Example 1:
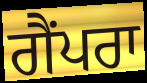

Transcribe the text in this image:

ਗੈਂਪਰਾ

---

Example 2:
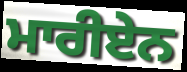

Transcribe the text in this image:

ਮਾਰੀਏਨ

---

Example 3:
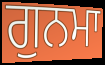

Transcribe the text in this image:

ਗੁਨਮਾ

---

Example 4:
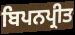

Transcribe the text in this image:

ਬਿਪਨਪ੍ਰੀਤ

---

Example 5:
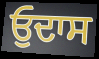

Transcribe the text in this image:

ਓੁਦਾਸ